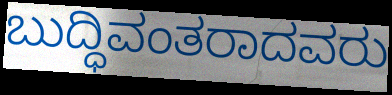
ಬುದ್ಧಿವಂತರಾದವರು